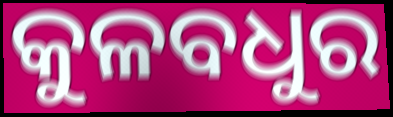
କୁଳବଧୁର